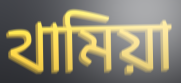
থামিয়া